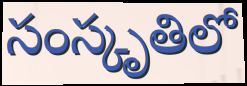
సంస్కృతిలో